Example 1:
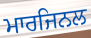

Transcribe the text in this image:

ਮਾਰਜਿਨਲ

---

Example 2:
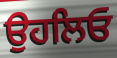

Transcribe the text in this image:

ਉਹਲਿਓ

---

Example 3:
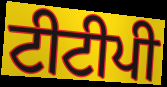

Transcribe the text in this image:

ਟੀਟੀਪੀ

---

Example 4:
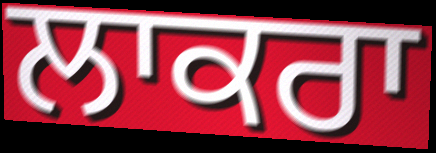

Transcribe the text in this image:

ਲਾਕਰਾ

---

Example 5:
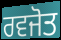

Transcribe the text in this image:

ਰਵਜੋਤ